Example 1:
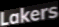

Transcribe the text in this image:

Lakers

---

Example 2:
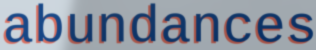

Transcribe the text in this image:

abundances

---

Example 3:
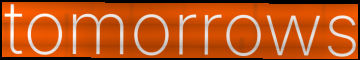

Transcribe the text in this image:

tomorrows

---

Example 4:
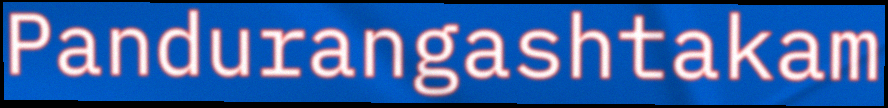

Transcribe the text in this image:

Pandurangashtakam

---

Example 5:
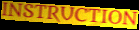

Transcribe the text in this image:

INSTRUCTION